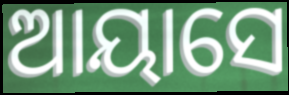
ଆୟାସେ